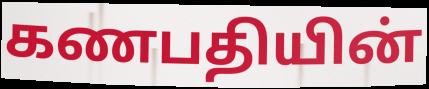
கணபதியின்